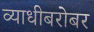
व्याधीबरोबर